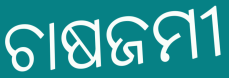
ଚାଷଜମୀ